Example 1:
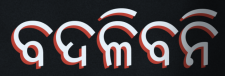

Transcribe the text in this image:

ବଦଳିବନି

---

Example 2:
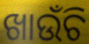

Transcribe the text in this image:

ଖାଉଁଚି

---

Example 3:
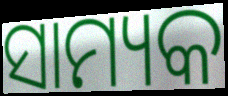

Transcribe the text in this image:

ସାମ୍ୟକ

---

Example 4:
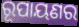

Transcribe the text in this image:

ରୂପାୟଣର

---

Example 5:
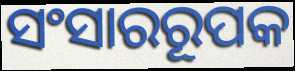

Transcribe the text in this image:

ସଂସାରରୂପକ